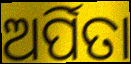
ଅର୍ପିତା